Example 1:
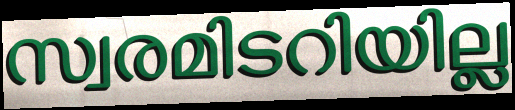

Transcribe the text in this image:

സ്വരമിടറിയില്ല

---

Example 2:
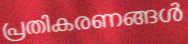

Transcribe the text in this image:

പ്രതികരണങ്ങൾ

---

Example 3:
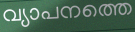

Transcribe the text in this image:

വ്യാപനത്തെ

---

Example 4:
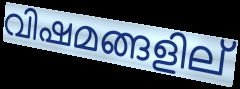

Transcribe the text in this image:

വിഷമങ്ങളില്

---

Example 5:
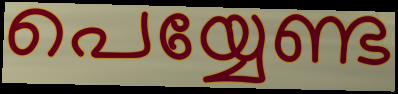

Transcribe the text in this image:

പെയ്യേണ്ട